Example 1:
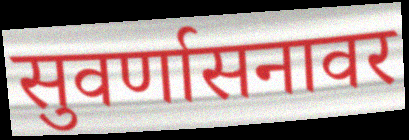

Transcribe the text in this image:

सुवर्णासनावर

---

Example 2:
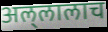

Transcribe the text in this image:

अल्लालाच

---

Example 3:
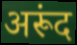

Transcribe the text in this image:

अरूंद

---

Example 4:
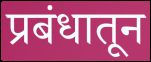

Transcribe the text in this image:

प्रबंधातून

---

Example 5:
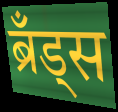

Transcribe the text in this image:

ब्रँड्स